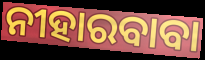
ନୀହାରବାବା